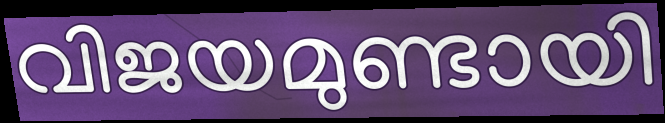
വിജയമുണ്ടായി